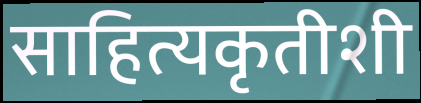
साहित्यकृतीशी